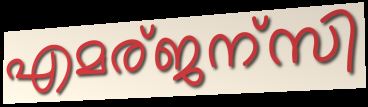
എമര്ജന്സി